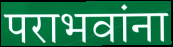
पराभवांना